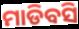
ମାଡିବସି